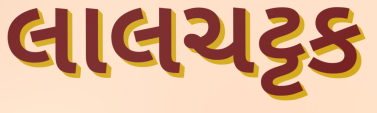
લાલચટ્ટક